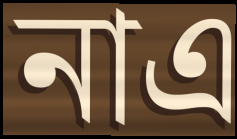
নাএ